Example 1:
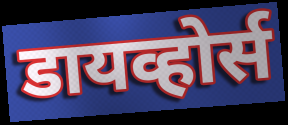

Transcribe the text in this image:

डायव्होर्स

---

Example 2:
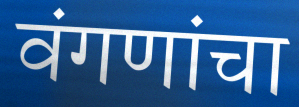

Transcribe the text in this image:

वंगणांचा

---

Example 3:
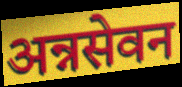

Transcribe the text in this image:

अन्नसेवन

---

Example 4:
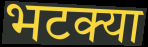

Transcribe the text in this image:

भटक्या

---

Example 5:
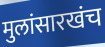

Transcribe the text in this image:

मुलांसारखंच